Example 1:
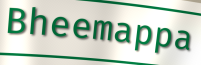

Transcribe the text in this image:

Bheemappa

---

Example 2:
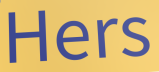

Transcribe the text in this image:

Hers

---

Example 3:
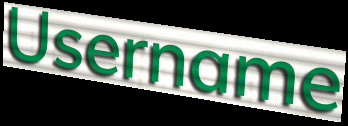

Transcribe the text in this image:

Username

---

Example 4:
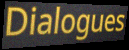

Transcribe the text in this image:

Dialogues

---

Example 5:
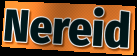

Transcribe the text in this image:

Nereid